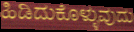
ಹಿಡಿದುಕೊಳ್ಳುವುದು